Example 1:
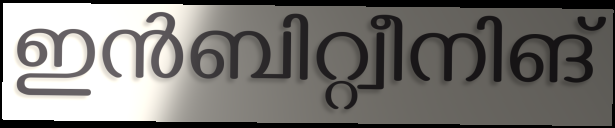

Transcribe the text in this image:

ഇൻബിറ്റ്വീനിങ്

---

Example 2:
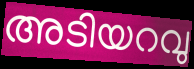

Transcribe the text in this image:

അടിയറവു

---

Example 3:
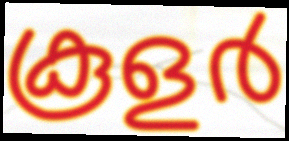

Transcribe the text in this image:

കൂളർ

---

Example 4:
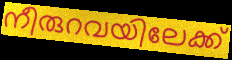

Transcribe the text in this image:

നീരുറവയിലേക്ക്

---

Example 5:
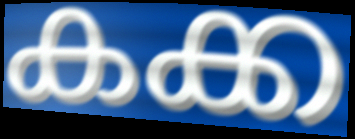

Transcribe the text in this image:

കക്ക